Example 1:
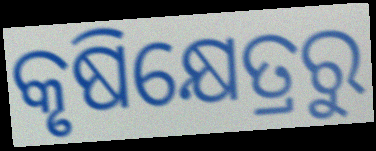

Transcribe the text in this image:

କୃଷିକ୍ଷେତ୍ରରୁ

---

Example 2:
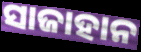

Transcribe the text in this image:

ସାଜାହାନ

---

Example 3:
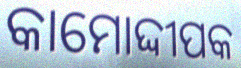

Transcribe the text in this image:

କାମୋଦ୍ଦୀପକ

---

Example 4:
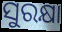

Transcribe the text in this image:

ସୁରକ୍ଷା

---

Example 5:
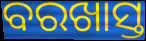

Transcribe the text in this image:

ବରଖାସ୍ତ